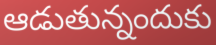
ఆడుతున్నందుకు